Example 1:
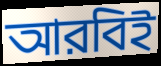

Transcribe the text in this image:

আরবিই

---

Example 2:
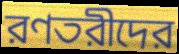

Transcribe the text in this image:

রণতরীদের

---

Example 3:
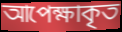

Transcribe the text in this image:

আপেক্ষাকৃত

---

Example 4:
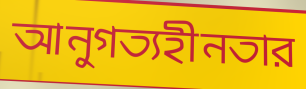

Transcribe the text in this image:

আনুগত্যহীনতার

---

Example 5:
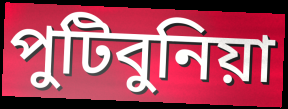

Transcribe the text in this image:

পুটিবুনিয়া